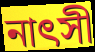
নাৎসী